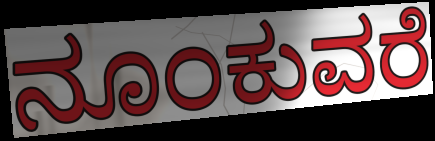
ನೂಂಕುವರೆ